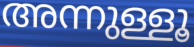
അന്നുള്ളൂ